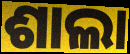
ଶାଲା